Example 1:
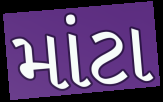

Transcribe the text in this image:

માંટા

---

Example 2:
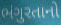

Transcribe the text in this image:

ભંગુરતાનો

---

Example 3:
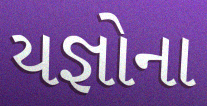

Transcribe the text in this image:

યજ્ઞોના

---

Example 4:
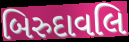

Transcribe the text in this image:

બિરુદાવલિ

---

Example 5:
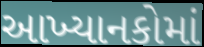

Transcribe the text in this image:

આખ્યાનકોમાં